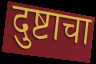
दुष्टाचा